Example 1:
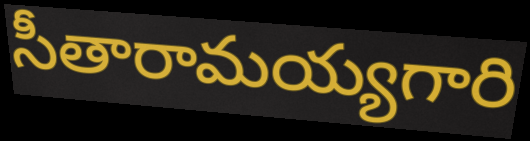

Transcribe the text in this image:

సీతారామయ్యగారి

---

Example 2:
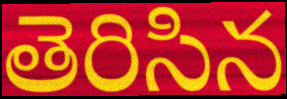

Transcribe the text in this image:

తెరిసిన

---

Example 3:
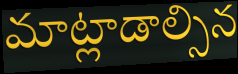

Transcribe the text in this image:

మాట్లాడాల్సిన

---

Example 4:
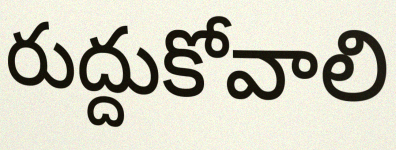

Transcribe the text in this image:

రుద్దుకోవాలి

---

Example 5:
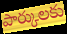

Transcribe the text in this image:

పార్కులకు